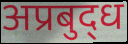
अप्रबुद्ध